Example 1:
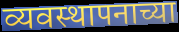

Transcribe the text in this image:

व्यवस्थापनाच्या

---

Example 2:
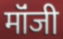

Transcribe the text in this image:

मॉंजी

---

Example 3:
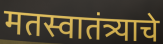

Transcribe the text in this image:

मतस्वातंत्र्याचे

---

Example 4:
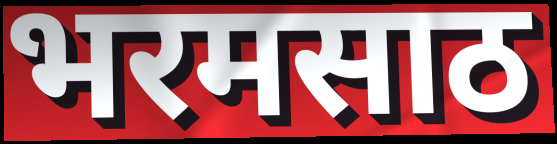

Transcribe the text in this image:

भरमसाठ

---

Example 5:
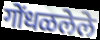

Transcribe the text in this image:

गोंधळलेले